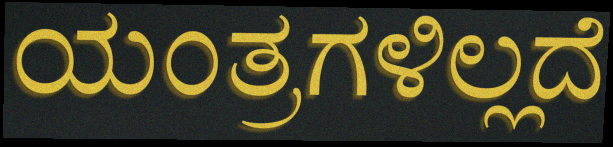
ಯಂತ್ರಗಳಿಲ್ಲದೆ